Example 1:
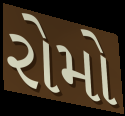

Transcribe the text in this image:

રોમો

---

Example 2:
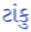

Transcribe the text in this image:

ટાંકુ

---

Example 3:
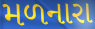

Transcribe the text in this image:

મળનારા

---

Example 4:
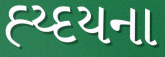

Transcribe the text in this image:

હ્ય્દયના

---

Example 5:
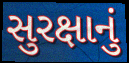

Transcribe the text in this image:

સુરક્ષાનું